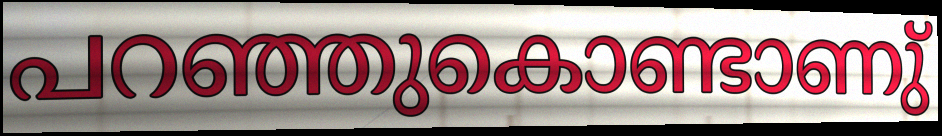
പറഞ്ഞുകൊണ്ടാണു്